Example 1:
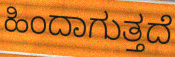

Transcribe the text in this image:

ಹಿಂದಾಗುತ್ತದೆ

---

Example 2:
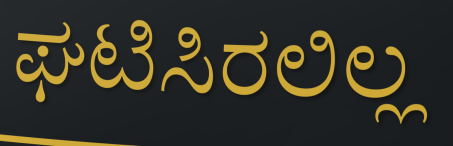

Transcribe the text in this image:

ಘಟಿಸಿರಲಿಲ್ಲ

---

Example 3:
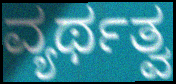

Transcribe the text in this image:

ವ್ಯರ್ಥತ್ವ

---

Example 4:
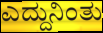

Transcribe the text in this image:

ಎದ್ದುನಿಂತು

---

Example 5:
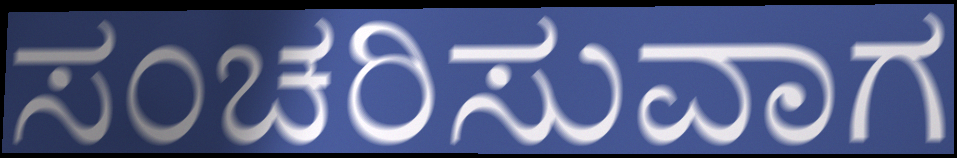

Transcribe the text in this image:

ಸಂಚರಿಸುವಾಗ